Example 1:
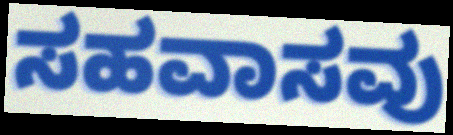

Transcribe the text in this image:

ಸಹವಾಸವು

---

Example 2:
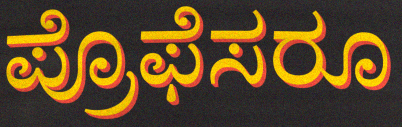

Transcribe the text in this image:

ಪ್ರೊಫೆಸರೂ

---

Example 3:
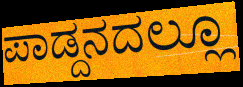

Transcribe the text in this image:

ಪಾಡ್ದನದಲ್ಲೂ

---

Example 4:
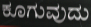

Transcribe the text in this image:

ಕೂಗುವುದು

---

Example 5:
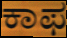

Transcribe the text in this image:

ಕಾಫ